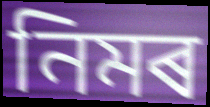
নিমৰ